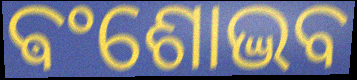
ଵଂଶୋଦ୍ଭବ